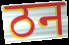
ठन